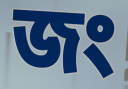
জং